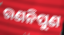
ରଣନିପୁଣ